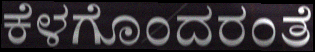
ಕೆಳಗೊಂದರಂತೆ